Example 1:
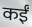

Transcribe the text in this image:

कईं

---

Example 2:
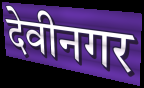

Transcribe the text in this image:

देवीनगर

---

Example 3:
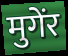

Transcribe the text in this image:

मुगेंर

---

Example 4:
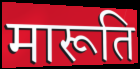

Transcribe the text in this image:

मारूति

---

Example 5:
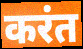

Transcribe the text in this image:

करंत